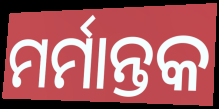
ମର୍ମାନ୍ତକ